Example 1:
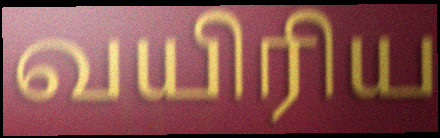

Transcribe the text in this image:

வயிரிய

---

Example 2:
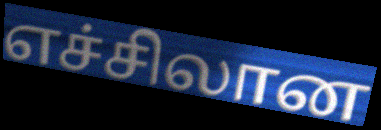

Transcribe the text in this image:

எச்சிலான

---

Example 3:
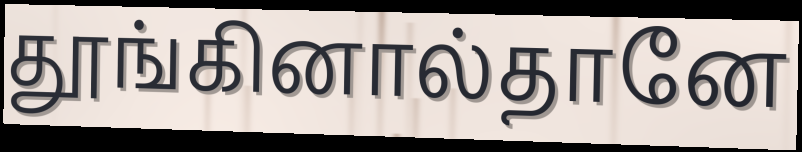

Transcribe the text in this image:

தூங்கினால்தானே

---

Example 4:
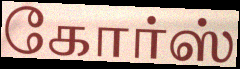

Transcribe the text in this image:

கோர்ஸ்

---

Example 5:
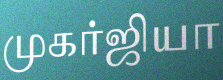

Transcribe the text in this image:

முகர்ஜியா